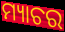
ମ୍ୟାଚର